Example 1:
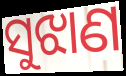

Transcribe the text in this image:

ସୁଝାଣ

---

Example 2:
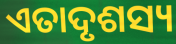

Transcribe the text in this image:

ଏତାଦୃଶସ୍ୟ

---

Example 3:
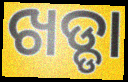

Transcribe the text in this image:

ଖଡ୍ଡା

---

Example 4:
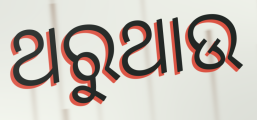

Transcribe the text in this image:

ଥରୁଥାଉ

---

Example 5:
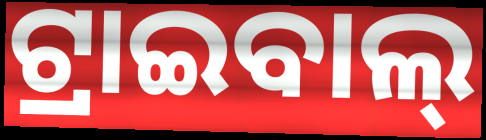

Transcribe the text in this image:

ଟ୍ରାଇବାଲ୍